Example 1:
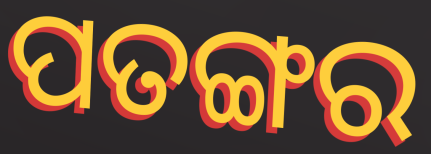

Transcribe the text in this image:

ପତଙ୍ଗର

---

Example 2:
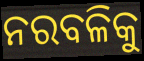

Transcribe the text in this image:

ନରବଳିକୁ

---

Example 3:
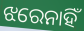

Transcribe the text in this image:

ଝରେନାହିଁ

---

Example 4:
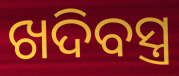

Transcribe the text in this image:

ଖଦିବସ୍ତ୍ର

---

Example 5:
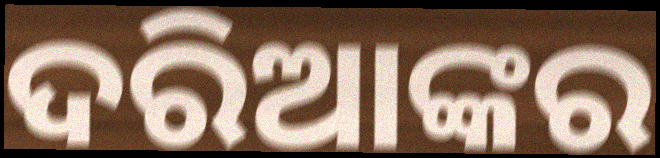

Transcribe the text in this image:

ଦରିଆଙ୍କର